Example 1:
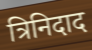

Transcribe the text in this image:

त्रिनिदाद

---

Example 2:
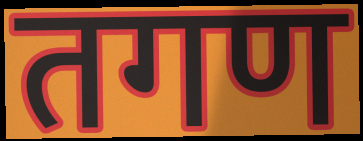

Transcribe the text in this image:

तगण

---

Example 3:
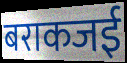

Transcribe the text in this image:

बराकजई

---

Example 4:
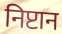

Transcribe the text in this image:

निप्टान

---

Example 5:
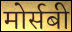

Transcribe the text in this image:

मोर्सबी